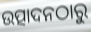
ଉତ୍ପାଦନଠାରୁ